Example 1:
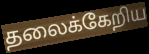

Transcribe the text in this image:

தலைக்கேறிய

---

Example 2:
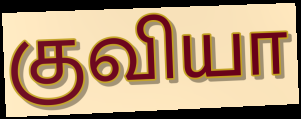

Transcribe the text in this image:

குவியா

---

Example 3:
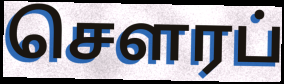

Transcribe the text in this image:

செளரப்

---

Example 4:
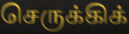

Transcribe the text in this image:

செருக்கிக்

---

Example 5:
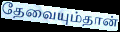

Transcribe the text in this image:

தேவையும்தான்